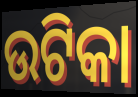
ଉଟିକା